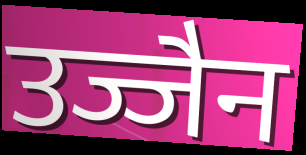
उज्जैन